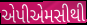
એપીએમસીથી